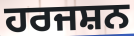
ਹਰਜਸ਼ਨ